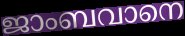
ജാംബവാനെ